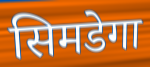
सिमडेगा